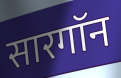
सारगॉन